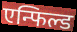
एन्फिल्ड